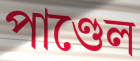
পাণ্ডেল